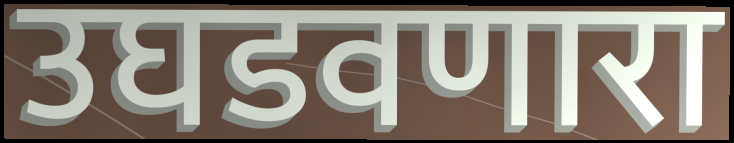
उघडवणारा